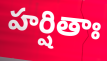
హర్షితాః